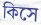
কিসে